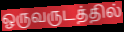
ஒருவருடத்தில்